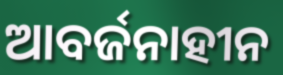
ଆବର୍ଜନାହୀନ